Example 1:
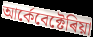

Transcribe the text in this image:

আৰ্কেবেক্টেৰিয়া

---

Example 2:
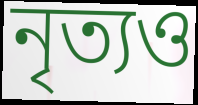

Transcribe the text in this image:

নৃত্যও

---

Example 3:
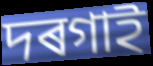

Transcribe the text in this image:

দৰগাই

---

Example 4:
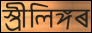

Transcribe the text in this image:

স্ত্ৰীলিঙ্গৰ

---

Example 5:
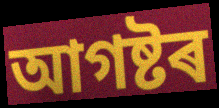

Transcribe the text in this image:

আগষ্টৰ